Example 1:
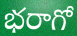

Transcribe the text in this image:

భరాగో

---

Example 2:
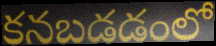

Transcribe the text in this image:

కనబడడంలో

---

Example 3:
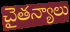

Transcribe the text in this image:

చైతన్యాలు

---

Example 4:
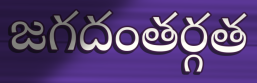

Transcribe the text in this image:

జగదంతర్గత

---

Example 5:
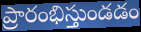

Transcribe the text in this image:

ప్రారంభిస్తుండడం